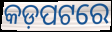
କଡ଼ପଟରେ